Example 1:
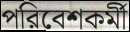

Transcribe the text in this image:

পরিবেশকর্মী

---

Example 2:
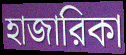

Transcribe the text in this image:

হাজারিকা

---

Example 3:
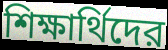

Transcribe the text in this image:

শিক্ষার্থিদের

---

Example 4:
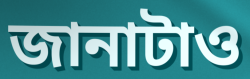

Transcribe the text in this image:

জানাটাও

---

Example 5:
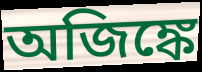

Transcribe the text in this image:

অজিঙ্কে